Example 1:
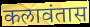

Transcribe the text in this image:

कलावंतास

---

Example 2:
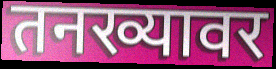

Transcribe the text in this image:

तनख्यावर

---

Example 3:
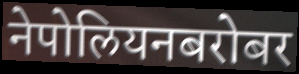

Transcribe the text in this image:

नेपोलियनबरोबर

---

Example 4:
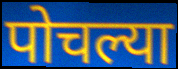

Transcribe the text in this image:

पोचल्या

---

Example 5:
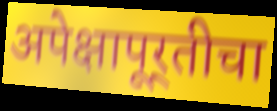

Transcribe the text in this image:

अपेक्षापूर्तीचा